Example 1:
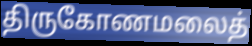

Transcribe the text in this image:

திருகோணமலைத்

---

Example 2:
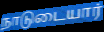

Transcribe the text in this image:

நாடுடையார்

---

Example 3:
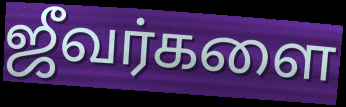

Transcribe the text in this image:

ஜீவர்களை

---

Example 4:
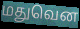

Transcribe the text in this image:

மதுவென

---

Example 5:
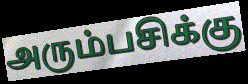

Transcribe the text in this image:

அரும்பசிக்கு